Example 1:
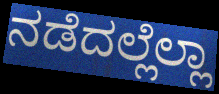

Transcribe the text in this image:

ನಡೆದಲ್ಲೆಲ್ಲಾ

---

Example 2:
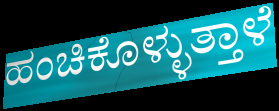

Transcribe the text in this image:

ಹಂಚಿಕೊಳ್ಳುತ್ತಾಳೆ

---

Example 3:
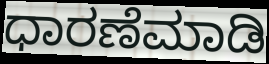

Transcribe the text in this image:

ಧಾರಣೆಮಾಡಿ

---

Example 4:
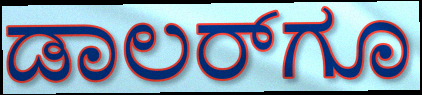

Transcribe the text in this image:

ಡಾಲರ್‌ಗೂ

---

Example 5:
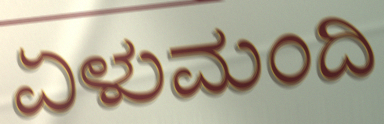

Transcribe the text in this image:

ಏಳುಮಂದಿ